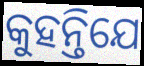
କୁହନ୍ତିଯେ